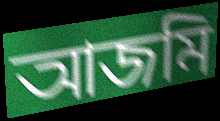
আজমি